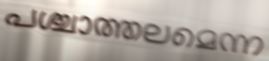
പശ്ചാത്തലമെന്ന